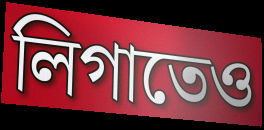
লিগাতেও